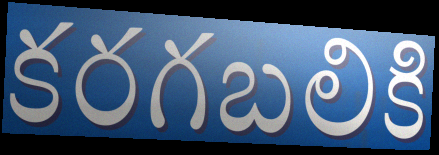
కరగబలికి